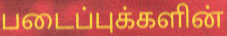
படைப்புக்களின்